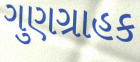
ગુણગ્રાહક